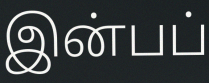
இன்பப்